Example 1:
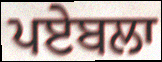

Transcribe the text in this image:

ਪਏਬਲਾ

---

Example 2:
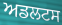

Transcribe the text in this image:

ਅਡਲਟਸ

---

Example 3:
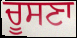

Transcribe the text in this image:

ਚੂਸਣਾ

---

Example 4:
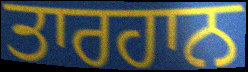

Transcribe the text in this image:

ਤਾਰਹਾਨ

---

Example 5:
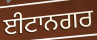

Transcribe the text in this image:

ਈਟਾਨਗਰ